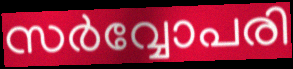
സർവ്വോപരി